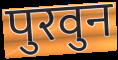
पुरवुन